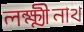
লক্ষ্মীনাথ